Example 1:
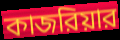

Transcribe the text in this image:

কাজরিয়ার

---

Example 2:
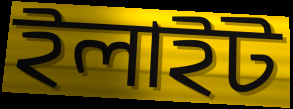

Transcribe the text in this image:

ইলাইট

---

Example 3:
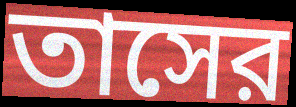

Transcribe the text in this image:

তাসের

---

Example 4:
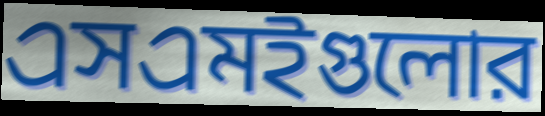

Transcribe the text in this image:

এসএমইগুলোর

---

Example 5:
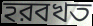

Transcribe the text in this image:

হরবখত